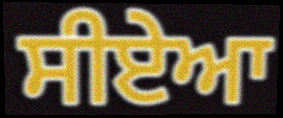
ਸੀਏਆ